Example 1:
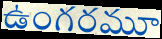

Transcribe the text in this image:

ఉంగరమూ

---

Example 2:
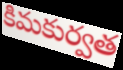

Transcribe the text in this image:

కిమకుర్వత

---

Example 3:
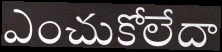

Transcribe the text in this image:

ఎంచుకోలేదా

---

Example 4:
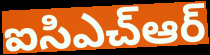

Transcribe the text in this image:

ఐసిఎచ్ఆర్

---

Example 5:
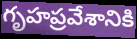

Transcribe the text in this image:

గృహప్రవేశానికి